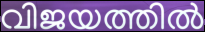
വിജയത്തിൽ